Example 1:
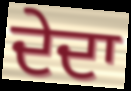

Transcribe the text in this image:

ਦੇਦਾ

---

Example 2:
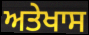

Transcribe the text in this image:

ਅਤੇਖਾਸ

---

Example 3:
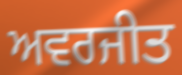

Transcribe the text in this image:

ਅਵਰਜੀਤ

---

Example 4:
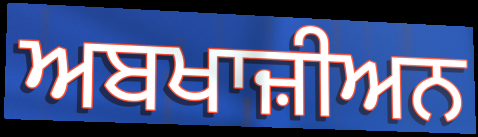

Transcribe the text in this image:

ਅਬਖਾਜ਼ੀਅਨ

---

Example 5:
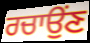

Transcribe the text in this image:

ਰਚਾਉਂਣ